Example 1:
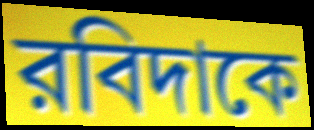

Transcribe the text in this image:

রবিদাকে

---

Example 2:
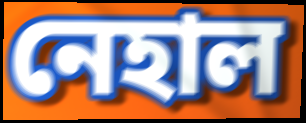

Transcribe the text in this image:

নেহাল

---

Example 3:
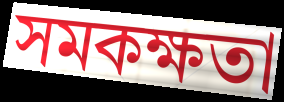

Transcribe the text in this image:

সমকক্ষতা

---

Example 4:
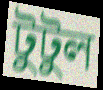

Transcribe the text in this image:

টুটুল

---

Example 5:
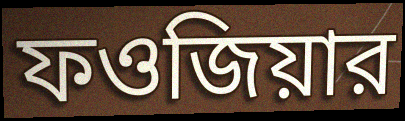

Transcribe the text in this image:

ফওজিয়ার